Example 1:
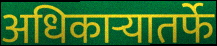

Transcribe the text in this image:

अधिकाऱ्यातर्फे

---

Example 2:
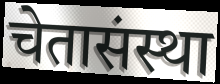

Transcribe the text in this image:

चेतासंस्था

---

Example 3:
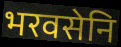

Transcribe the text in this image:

भरवसेनि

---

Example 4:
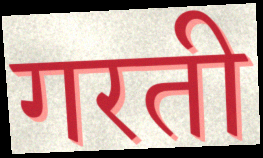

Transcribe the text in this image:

गरती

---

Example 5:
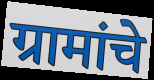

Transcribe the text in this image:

ग्रामांचे